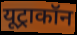
यूट्राकॉन